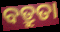
ବତ୍ରୁତା